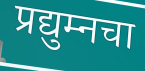
प्रद्युम्नचा